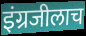
इंग्रजीलाच